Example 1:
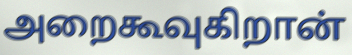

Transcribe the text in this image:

அறைகூவுகிறான்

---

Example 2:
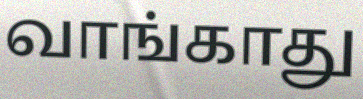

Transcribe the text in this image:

வாங்காது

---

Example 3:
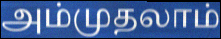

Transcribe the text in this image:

அம்முதலாம்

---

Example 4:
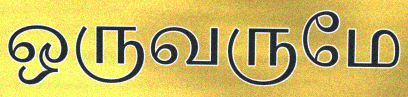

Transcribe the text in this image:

ஒருவருமே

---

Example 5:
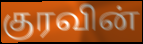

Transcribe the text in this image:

குரவின்